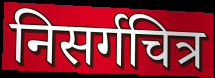
निसर्गचित्र